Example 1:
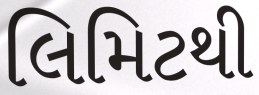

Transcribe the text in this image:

લિમિટથી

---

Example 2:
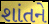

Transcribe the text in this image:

શાંતને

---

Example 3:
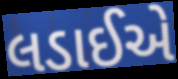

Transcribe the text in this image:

લડાઈએ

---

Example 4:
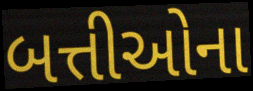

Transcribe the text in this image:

બત્તીઓના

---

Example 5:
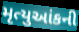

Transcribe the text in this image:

મૃત્યુઆંકની